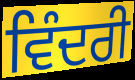
ਵਿੰਦਰੀ